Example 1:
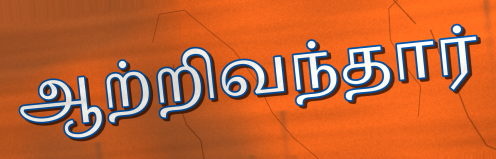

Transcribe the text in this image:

ஆற்றிவந்தார்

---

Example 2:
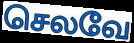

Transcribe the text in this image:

செலவே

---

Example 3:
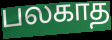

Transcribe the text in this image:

பலகாத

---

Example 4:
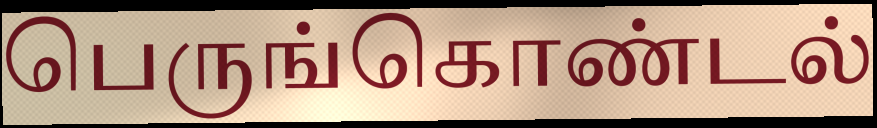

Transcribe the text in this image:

பெருங்கொண்டல்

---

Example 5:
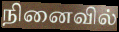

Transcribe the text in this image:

நினைவில்